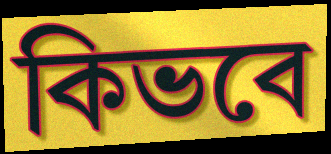
কিভবে